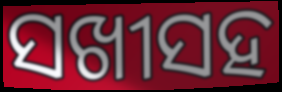
ସଖୀସହ